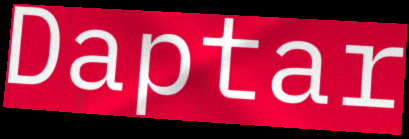
Daptar